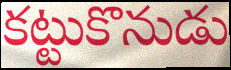
కట్టుకొనుడు